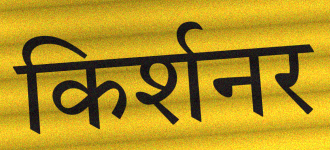
किर्शनर